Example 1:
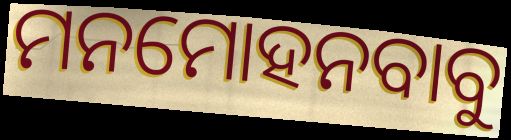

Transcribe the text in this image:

ମନମୋହନବାବୁ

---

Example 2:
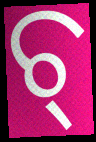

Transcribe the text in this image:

ଚ୍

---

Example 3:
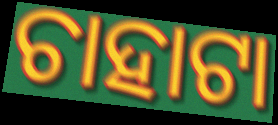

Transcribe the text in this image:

ଚାହାଟା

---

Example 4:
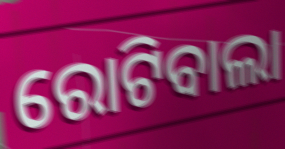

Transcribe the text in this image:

ରୋଟିବାଲା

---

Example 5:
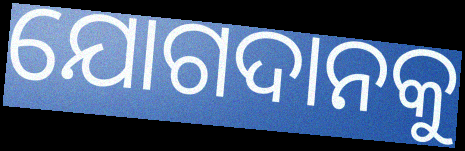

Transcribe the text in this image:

ଯୋଗଦାନକୁ